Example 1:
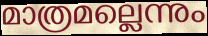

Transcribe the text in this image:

മാത്രമല്ലെന്നും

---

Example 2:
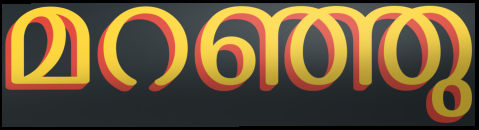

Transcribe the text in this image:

മറഞ്ഞു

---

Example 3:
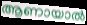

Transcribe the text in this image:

ആണായാൽ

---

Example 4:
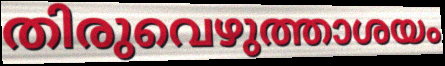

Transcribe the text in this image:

തിരുവെഴുത്താശയം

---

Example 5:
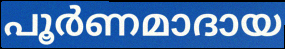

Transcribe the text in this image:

പൂർണമാദായ